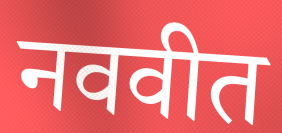
नववीत